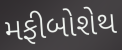
મફીબોશેથ